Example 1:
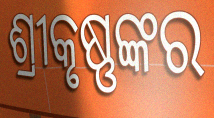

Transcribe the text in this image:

ଶ୍ରୀକୃଷ୍ଣଙ୍କର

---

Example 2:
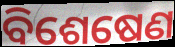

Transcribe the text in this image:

ବିଶେଷେଣ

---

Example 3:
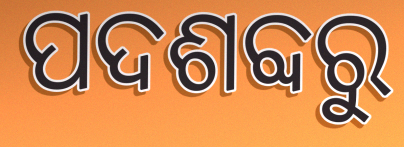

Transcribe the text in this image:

ପଦଶବ୍ଦରୁ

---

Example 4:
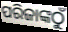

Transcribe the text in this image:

ପରିଜାଙ୍କଠୁଁ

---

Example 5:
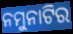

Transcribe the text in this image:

ନମୁନାଟିର